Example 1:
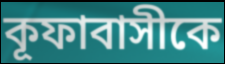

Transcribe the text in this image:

কূফাবাসীকে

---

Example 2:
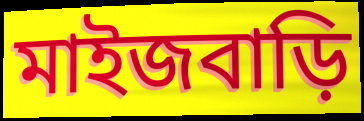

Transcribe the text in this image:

মাইজবাড়ি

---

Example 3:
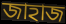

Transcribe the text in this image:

জাহাজ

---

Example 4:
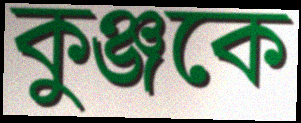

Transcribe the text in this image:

কুঞ্জকে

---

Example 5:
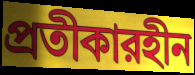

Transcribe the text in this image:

প্রতীকারহীন